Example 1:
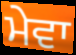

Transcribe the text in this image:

ਮੇਵਾ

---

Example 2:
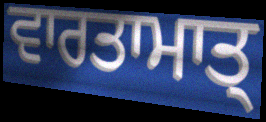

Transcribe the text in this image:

ਵਾਰਤਾਮਾਤ੍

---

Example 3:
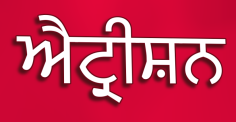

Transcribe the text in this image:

ਐਟ੍ਰੀਸ਼ਨ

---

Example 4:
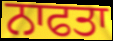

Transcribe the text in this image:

ਨਾਫਤਾ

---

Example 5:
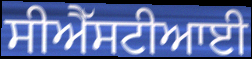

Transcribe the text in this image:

ਸੀਐੱਸਟੀਆਈ